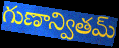
గుణాన్వితమ్